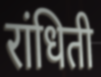
रांधिती